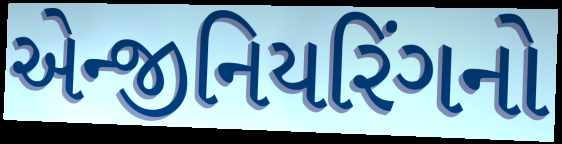
એન્જીનિયરિંગનો